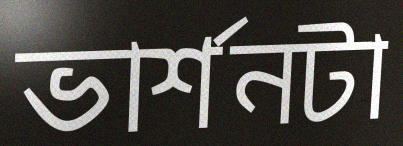
ভার্শনটা